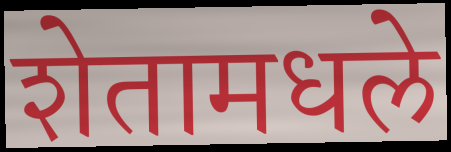
शेतामधले